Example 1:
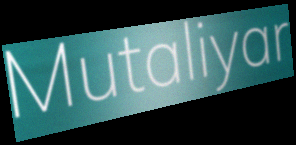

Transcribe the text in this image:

Mutaliyar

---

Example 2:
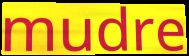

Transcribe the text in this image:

mudre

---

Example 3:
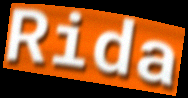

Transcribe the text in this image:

Rida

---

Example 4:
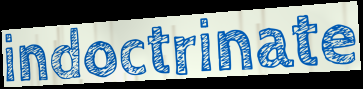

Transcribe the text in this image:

indoctrinate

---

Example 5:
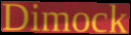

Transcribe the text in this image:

Dimock